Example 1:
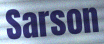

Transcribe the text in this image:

Sarson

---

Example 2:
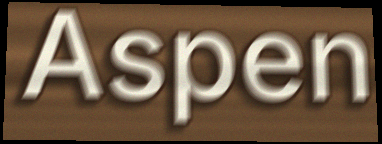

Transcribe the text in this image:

Aspen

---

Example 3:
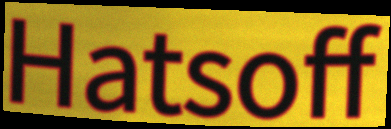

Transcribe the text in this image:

Hatsoff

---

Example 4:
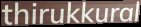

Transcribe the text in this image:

thirukkural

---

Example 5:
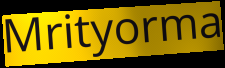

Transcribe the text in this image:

Mrityorma